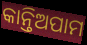
କାନ୍ତିଅପାମ